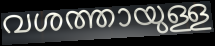
വശത്തായുള്ള